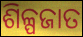
ଶିଳ୍ପଜାତ